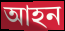
আহন